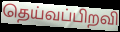
தெய்வப்பிறவி